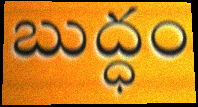
బుద్ధం